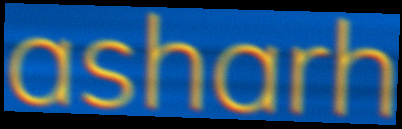
asharh